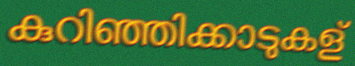
കുറിഞ്ഞിക്കാടുകള്